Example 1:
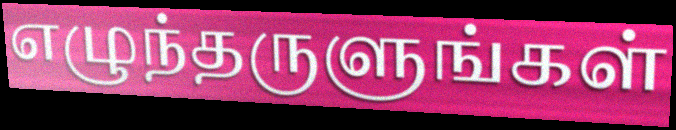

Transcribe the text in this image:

எழுந்தருளுங்கள்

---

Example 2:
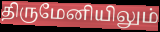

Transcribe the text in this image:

திருமேனியிலும்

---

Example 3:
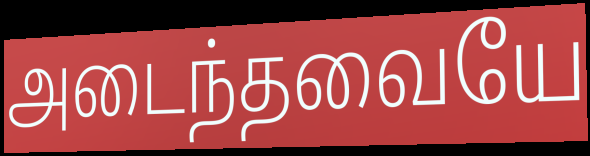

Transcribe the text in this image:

அடைந்தவையே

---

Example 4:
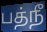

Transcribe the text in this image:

பத்நீ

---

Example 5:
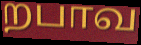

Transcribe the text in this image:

றபாவ